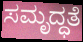
ಸಮೃದ್ಧತೆ